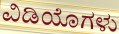
ವಿಡಿಯೊಗಳು